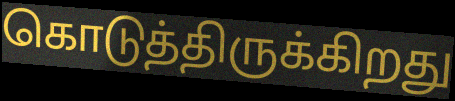
கொடுத்திருக்கிறது